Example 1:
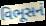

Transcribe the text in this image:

વિભૂસનં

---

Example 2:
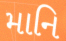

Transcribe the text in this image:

માનિ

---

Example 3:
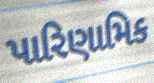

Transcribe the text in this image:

પારિણામિક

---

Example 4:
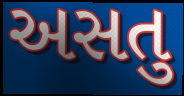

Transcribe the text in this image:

અસતુ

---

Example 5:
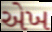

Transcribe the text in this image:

એખ